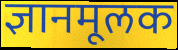
ज्ञानमूलक